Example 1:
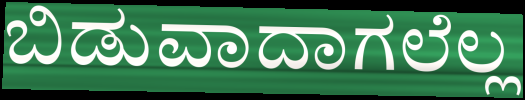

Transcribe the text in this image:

ಬಿಡುವಾದಾಗಲೆಲ್ಲ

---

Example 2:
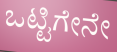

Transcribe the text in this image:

ಒಟ್ಟಿಗೇನೇ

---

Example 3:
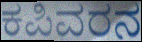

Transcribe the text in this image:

ಕಪಿವರನ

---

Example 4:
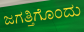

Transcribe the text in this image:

ಜಗತ್ತಿಗೊಂದು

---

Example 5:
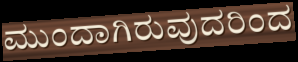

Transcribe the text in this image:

ಮುಂದಾಗಿರುವುದರಿಂದ